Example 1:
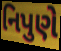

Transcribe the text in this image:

નિપુણે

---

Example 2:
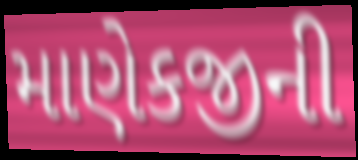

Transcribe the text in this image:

માણેકજીની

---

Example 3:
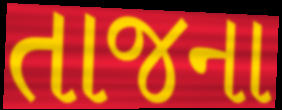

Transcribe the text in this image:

તાજના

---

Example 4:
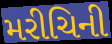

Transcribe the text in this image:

મરીચિની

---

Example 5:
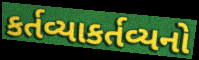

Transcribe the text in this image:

કર્તવ્યાકર્તવ્યનો